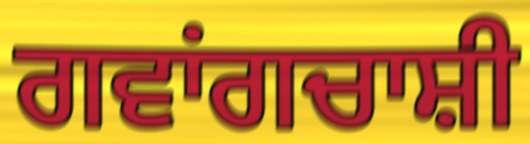
ਗਵਾਂਗਚਾਸ਼ੀ